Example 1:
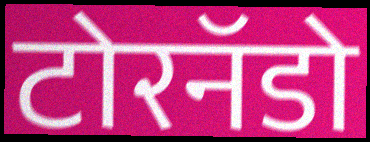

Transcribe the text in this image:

टोरनॅडो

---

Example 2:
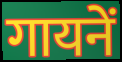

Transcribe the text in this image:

गायनें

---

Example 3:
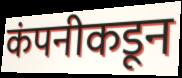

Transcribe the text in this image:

कंपनीकडून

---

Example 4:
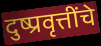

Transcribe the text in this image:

दुष्प्रवृत्तींचे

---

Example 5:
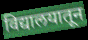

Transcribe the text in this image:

विद्यालयातून